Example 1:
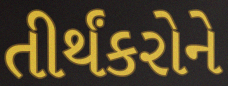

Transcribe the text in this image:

તીર્થંકરોને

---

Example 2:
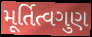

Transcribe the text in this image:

મૂર્તિત્વગુણ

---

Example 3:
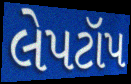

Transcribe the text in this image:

લેપટૉપ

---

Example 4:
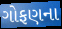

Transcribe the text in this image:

ગોફણના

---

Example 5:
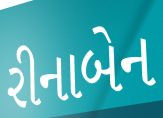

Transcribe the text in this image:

રીનાબેન